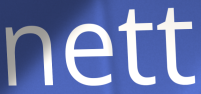
nett